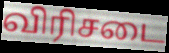
விரிசடை